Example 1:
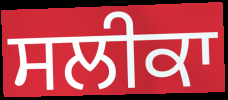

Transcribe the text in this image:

ਸਲੀਕਾ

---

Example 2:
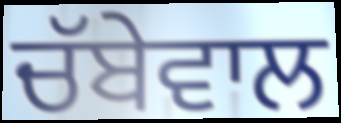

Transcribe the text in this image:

ਚੱਬੇਵਾਲ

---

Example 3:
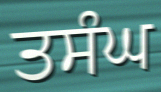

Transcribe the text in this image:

ਤਸੰਘ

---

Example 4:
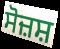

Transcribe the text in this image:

ਸੋਜ਼ਸ਼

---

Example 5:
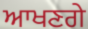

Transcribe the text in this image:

ਆਖਣਗੇ